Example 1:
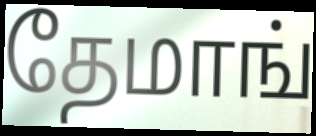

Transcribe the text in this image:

தேமாங்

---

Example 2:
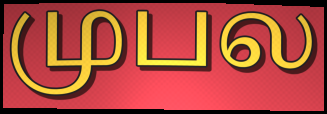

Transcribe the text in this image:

முபல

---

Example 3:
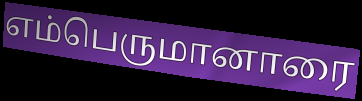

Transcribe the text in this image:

எம்பெருமானாரை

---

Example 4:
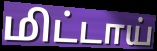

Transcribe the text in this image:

மிட்டாய்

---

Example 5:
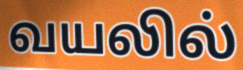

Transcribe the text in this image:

வயலில்